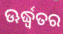
ଊର୍ଦ୍ଧ୍ଵତର